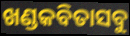
ଖଣ୍ଡକବିତାସବୁ